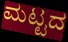
ಮಟ್ಟದ